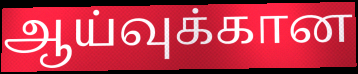
ஆய்வுக்கான